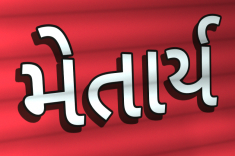
મેતાર્ય